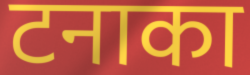
टनाका